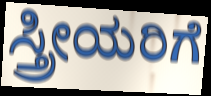
ಸ್ತ್ರೀಯರಿಗೆ